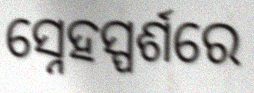
ସ୍ନେହସ୍ପର୍ଶରେ